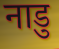
नाडु